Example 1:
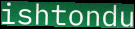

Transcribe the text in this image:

ishtondu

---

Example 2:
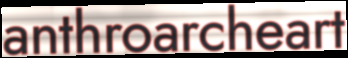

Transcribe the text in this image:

anthroarcheart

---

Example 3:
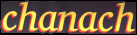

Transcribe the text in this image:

chanach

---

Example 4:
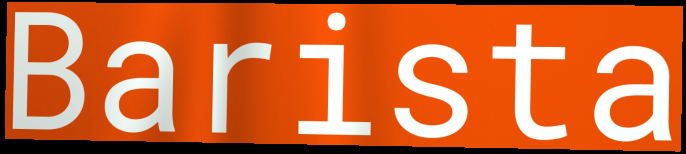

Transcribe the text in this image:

Barista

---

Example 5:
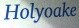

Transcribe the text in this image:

Holyoake